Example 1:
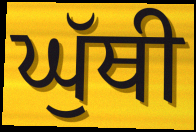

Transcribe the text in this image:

ਘੁੱਥੀ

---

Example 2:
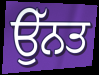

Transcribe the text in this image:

ਉੱਨਤ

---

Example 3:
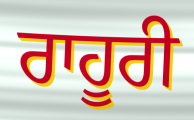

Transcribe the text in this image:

ਰਾਹੂਰੀ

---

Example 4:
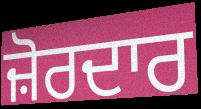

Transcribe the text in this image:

ਜ਼ੋਰਦਾਰ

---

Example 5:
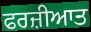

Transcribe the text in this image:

ਫਰਜ਼ੀਆਤ